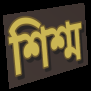
শিশ্ম